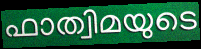
ഫാത്വിമയുടെ